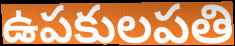
ఉపకులపతి